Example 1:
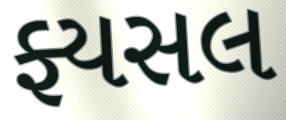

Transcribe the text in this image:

ફ્યસલ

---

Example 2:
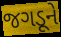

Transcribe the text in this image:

જગડૂને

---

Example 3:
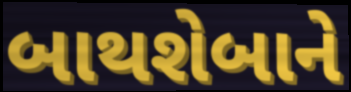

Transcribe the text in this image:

બાથશેબાને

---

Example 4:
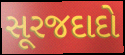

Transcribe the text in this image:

સૂરજદાદો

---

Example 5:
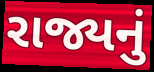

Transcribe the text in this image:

રાજ્યનું